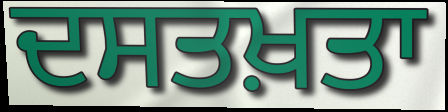
ਦਸਤਖ਼ਤਾ